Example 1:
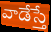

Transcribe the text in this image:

వాడేస్తే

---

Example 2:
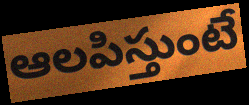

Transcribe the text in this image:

ఆలపిస్తుంటే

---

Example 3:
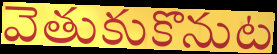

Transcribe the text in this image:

వెతుకుకొనుట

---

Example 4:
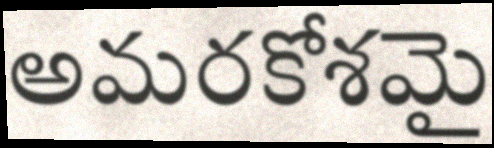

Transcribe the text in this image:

అమరకోశమై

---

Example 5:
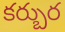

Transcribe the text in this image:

కర్బుర